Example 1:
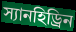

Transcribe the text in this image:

স্যানহিড্রিন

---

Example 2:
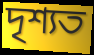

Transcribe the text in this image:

দৃশ্যত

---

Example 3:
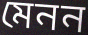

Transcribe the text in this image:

মেনন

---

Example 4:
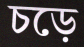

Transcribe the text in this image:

চড়ে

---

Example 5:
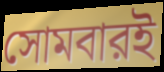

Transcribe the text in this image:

সোমবারই